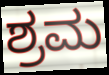
ಶ್ರಮ